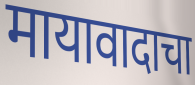
मायावादाचा